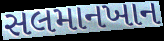
સલમાનખાન